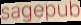
sagepub